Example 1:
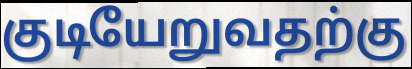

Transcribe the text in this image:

குடியேறுவதற்கு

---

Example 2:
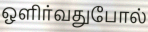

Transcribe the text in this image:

ஒளிர்வதுபோல்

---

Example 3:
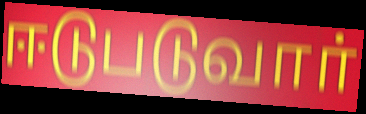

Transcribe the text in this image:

ஈடுபடுவார்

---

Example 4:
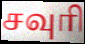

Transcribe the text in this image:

சவுரி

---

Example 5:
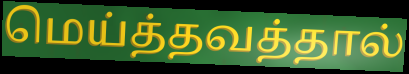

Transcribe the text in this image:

மெய்த்தவத்தால்